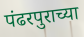
पंढरपुराच्या